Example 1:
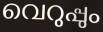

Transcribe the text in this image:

വെറുപ്പും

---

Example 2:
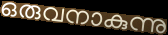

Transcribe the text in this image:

ഒരുവനാകുന്നു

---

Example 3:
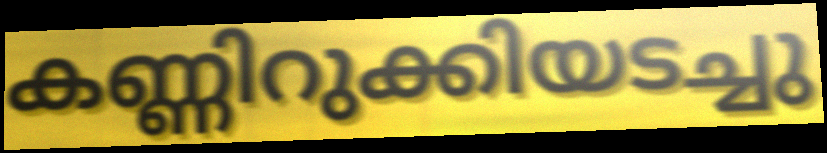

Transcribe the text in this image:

കണ്ണിറുക്കിയടച്ചു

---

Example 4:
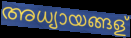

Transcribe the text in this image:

അധ്യായങ്ങള്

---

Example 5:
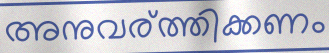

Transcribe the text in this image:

അനുവര്ത്തിക്കണം